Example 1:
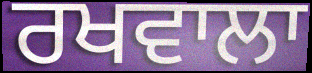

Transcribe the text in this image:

ਰਖਵਾਲਾ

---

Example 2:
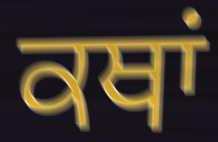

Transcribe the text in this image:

ਕਥਾਂ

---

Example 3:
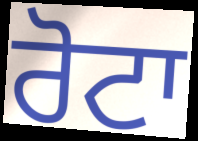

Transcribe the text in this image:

ਰੋਟਾ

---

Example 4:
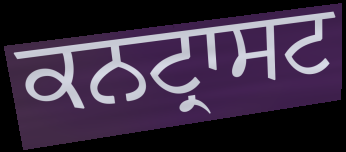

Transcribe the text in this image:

ਕਨਟ੍ਰਾਸਟ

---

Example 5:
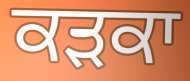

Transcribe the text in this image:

ਕੜਕਾ